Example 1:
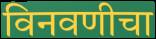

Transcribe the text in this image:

विनवणीचा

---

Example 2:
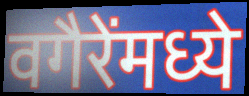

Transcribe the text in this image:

वगैरेंमध्ये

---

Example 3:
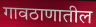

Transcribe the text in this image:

गावठाणातील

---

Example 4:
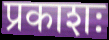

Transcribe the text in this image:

प्रकाशः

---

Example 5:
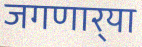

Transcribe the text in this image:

जगणार्‍या